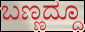
ಬಣ್ಣದ್ದೂ